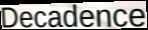
Decadence